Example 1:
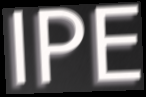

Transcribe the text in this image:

IPE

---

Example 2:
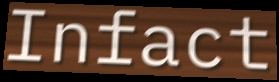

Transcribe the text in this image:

Infact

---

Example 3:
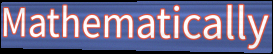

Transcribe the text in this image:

Mathematically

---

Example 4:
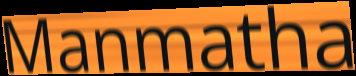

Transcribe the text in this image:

Manmatha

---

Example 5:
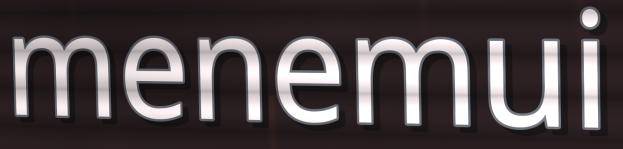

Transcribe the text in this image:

menemui